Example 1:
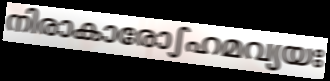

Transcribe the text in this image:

നിരാകാരോഽഹമവ്യയഃ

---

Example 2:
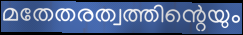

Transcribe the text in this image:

മതേതരത്വത്തിന്റെയും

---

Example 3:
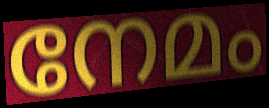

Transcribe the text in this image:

നേമം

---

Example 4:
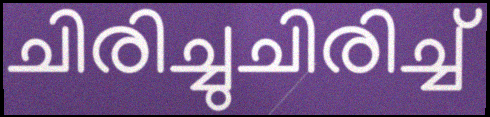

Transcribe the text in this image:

ചിരിച്ചുചിരിച്ച്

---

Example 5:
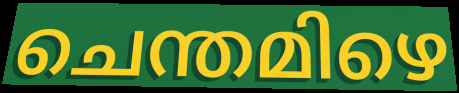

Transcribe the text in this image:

ചെന്തമിഴെ